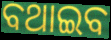
ବଥାଇବ